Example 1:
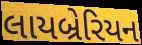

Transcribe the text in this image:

લાયબ્રેરિયન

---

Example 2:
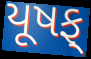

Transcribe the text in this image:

યૂષફ્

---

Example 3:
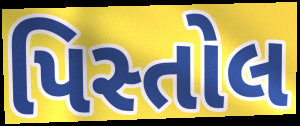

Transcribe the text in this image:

પિસ્તોલ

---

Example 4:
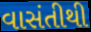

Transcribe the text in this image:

વાસંતીથી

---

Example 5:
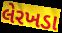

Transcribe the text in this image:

લેરખડા